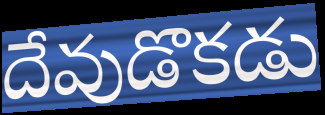
దేవుడొకడు